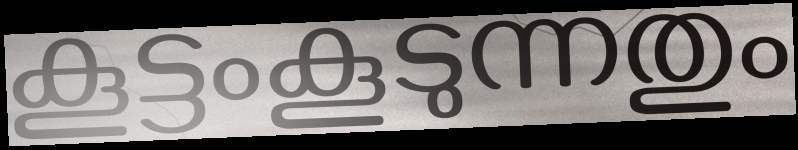
കൂട്ടംകൂടുന്നതും